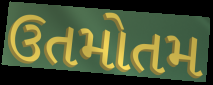
ઉતમોતમ